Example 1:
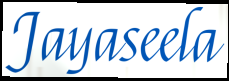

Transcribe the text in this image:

Jayaseela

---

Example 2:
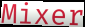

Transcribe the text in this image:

Mixer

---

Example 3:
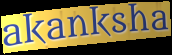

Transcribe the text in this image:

akanksha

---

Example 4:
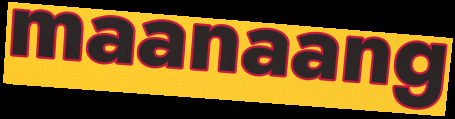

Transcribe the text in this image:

maanaang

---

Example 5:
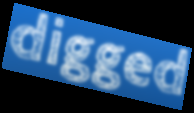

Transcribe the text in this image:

digged